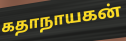
கதாநாயகன்